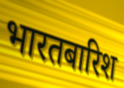
भारतबारिश